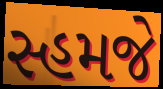
સ્હમજે